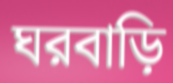
ঘরবাড়ি